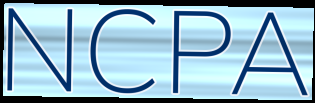
NCPA